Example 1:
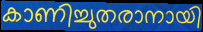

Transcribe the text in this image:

കാണിച്ചുതരാനായി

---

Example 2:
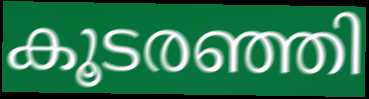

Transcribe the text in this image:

കൂടരഞ്ഞി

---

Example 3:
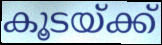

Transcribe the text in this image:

കൂടയ്ക്ക്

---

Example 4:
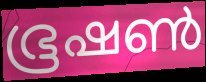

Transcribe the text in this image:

ഭൂഷൺ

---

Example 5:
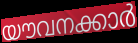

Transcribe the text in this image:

യൗവനക്കാർ